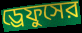
ড্রেফুসের